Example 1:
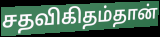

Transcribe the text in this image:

சதவிகிதம்தான்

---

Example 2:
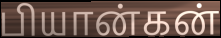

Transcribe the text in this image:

பியான்கன்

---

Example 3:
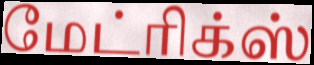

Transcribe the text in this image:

மேட்ரிக்ஸ்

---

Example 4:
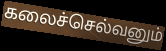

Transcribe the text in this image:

கலைச்செல்வனும்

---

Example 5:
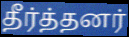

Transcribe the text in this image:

தீர்த்தனர்